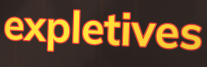
expletives